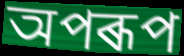
অপৰূপ